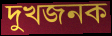
দুখজনক